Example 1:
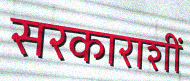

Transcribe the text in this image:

सरकाराशीं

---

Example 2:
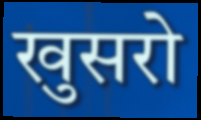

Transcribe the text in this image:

खुसरो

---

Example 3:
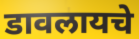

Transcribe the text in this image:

डावलायचे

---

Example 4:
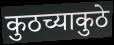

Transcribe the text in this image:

कुठच्याकुठे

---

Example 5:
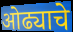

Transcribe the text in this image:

ओढ्याचे